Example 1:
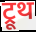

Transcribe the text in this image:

ट्रूथ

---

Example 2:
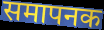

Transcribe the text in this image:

समापनक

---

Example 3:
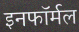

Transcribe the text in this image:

इनफॉर्मल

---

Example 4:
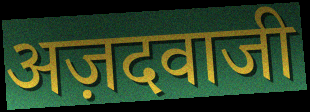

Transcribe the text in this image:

अज़दवाजी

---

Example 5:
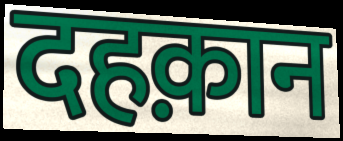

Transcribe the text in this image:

दहक़ान